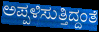
ಅಪ್ಪಳಿಸುತ್ತಿದ್ದಂತೆ